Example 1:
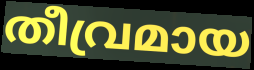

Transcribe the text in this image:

തീവ്രമായ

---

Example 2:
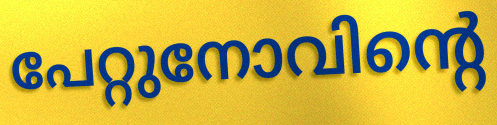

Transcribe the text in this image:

പേറ്റുനോവിന്റെ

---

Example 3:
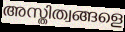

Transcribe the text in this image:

അസ്തിത്വങ്ങളെ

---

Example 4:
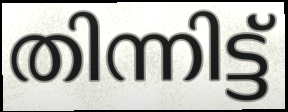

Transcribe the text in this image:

തിന്നിട്ട്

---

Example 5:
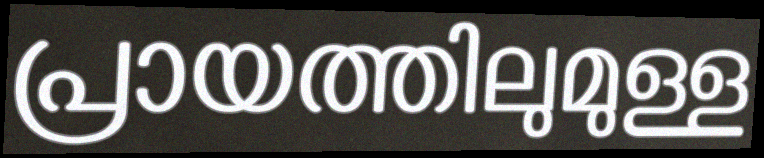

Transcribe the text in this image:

പ്രായത്തിലുമുള്ള